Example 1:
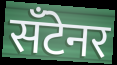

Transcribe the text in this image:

सँटेनर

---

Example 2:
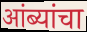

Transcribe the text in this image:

आंब्यांचा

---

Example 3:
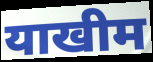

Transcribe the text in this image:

याखीम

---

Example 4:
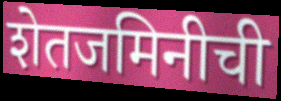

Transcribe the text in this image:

शेतजमिनीची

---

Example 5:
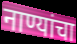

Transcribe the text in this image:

नाण्यांचा